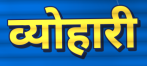
व्योहारी